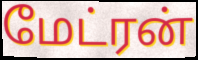
மேட்ரன்